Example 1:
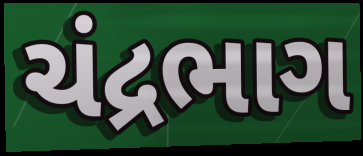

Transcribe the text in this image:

ચંદ્રભાગ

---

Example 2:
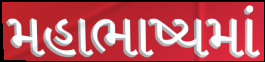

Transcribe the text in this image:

મહાભાષ્યમાં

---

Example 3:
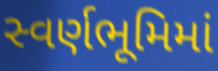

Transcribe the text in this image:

સ્વર્ણભૂમિમાં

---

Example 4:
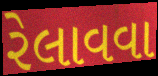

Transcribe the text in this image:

રેલાવવા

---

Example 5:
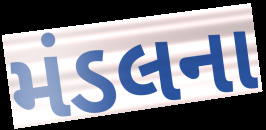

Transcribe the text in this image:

મંડલના